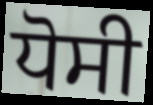
ਧੋਸੀ